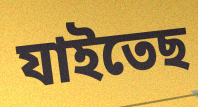
যাইতেছ